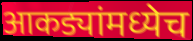
आकड्यांमध्येच